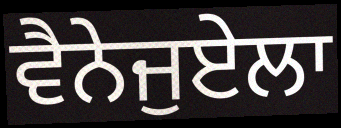
ਵੈਨੇਜੁਏਲਾ